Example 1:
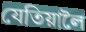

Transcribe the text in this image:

যেতিয়ালৈ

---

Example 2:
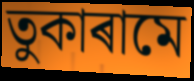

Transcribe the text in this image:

তুকাৰামে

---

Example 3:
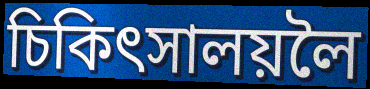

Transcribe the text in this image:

চিকিৎসালয়লৈ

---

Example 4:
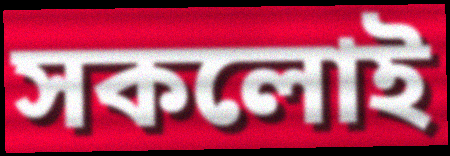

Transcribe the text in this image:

সকলোই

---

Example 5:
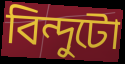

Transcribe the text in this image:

বিন্দুটো